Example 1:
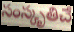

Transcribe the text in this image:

సంస్కృతిచే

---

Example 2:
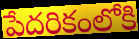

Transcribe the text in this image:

పేదరికంలోకి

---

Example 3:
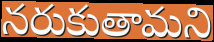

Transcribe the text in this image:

నరుకుతామని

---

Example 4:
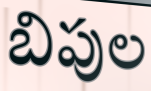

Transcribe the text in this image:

బిపుల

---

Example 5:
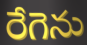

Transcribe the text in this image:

రేగెను